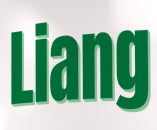
Liang